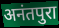
अनंतपुरा